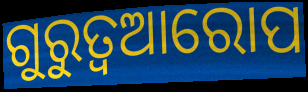
ଗୁରୁତ୍ଵଆରୋପ